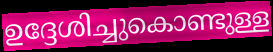
ഉദ്ദേശിച്ചുകൊണ്ടുള്ള